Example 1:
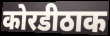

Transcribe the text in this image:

कोरडीठाक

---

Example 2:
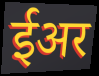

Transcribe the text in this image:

ईअर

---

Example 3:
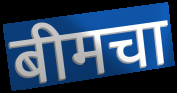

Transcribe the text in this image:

बीमचा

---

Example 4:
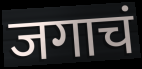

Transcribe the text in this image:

जगाचं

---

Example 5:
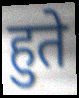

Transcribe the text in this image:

हुते